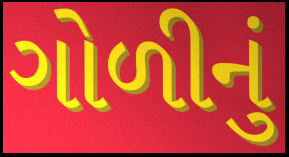
ગોળીનું